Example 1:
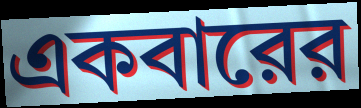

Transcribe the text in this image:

একবারের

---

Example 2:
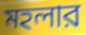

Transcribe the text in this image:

মহলার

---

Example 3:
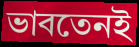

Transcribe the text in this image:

ভাবতেনই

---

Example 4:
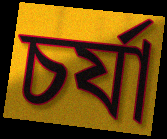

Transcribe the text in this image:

চর্যা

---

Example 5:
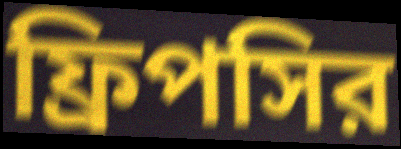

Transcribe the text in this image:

ফ্রিপসির